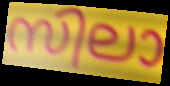
സിലാ